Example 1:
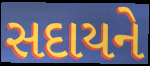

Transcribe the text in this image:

સદાયને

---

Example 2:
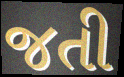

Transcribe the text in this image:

જતી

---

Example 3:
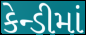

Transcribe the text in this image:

કેન્ડીમાં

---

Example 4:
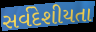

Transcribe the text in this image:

સર્વદેશીયતા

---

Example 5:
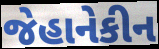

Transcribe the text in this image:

જેહાનેકીન